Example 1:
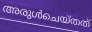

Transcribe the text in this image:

അരുൾചെയ്തത്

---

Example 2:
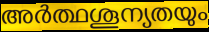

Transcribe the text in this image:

അർത്ഥശൂന്യതയും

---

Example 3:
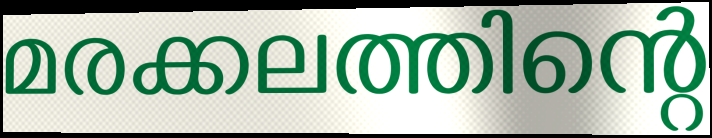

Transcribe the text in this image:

മരക്കലത്തിന്റെ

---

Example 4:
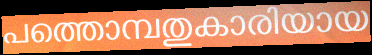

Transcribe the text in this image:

പത്തൊമ്പതുകാരിയായ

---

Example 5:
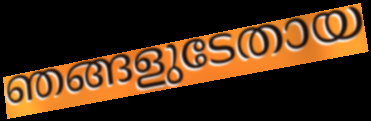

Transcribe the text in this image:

ഞങ്ങളുടേതായ